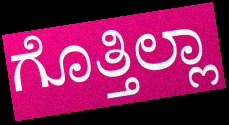
ಗೊತ್ತಿಲ್ಲಾ